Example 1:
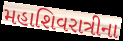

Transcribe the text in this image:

મહાશિવરાત્રીના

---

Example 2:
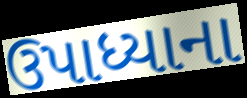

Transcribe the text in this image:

ઉપાધ્યાના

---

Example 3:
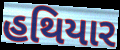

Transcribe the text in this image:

હથિયાર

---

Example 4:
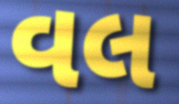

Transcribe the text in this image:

વલ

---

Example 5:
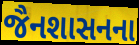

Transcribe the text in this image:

જૈનશાસનના